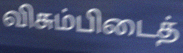
விசும்பிடைத்